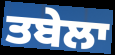
ਤਬੇਲਾ